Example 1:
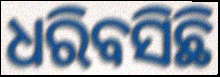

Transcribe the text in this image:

ଧରିବସିଛି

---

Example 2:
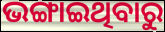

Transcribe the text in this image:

ଭଙ୍ଗାଇଥିବାରୁ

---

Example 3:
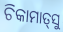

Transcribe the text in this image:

ଚିକାମାତ୍‌ସୁ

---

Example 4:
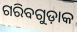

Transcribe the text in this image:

ଗରିବଗୁଡ଼ାକ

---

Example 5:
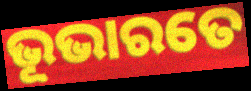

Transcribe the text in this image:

ଭୂଭାରତେ